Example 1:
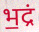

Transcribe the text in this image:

भ॒द्रं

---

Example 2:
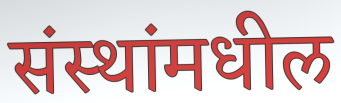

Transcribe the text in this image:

संस्थांमधील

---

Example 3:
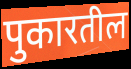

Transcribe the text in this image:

पुकारतील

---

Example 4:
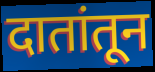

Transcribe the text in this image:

दातांतून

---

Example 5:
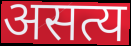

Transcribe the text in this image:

असत्य